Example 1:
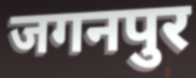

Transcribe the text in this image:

जगनपुर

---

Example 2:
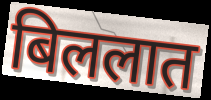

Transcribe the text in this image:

बिललात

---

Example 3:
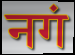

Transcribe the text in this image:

नगं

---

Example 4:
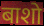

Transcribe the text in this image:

बाशो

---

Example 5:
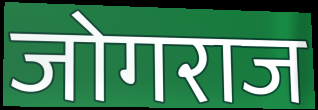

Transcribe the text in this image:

जोगराज